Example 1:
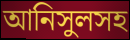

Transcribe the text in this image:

আনিসুলসহ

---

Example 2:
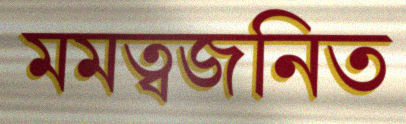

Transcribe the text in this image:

মমত্বজনিত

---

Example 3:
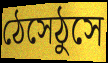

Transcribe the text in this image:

ঠেসেঠুসে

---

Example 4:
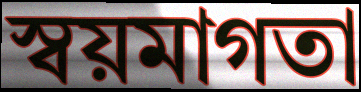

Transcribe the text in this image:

স্বয়মাগতা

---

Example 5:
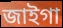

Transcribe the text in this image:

জাইগা